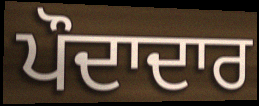
ਪੌਦਾਦਾਰ